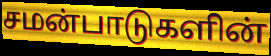
சமன்பாடுகளின்